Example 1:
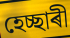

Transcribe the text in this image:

হেচ্ছাৰী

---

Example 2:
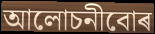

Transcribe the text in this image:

আলোচনীবোৰ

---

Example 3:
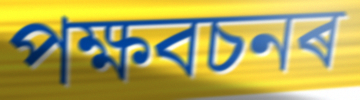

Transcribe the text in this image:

পক্ষবচনৰ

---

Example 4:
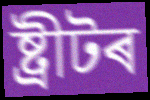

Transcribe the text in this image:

ষ্ট্ৰীটৰ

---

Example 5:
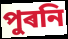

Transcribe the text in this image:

পুৰনি